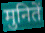
मुनितें